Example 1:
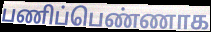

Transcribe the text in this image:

பணிப்பெண்ணாக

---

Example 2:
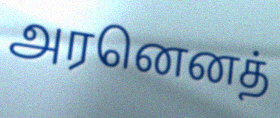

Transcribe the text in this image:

அரனெனத்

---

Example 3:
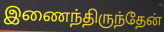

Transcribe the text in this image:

இணைந்திருந்தேன்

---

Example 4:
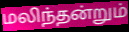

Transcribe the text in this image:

மலிந்தன்றும்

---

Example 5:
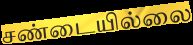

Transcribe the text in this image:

சண்டையில்லை